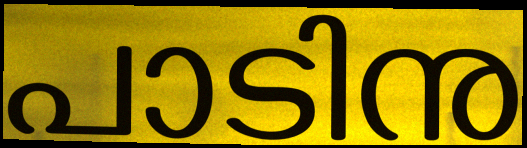
പാടിനു